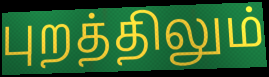
புறத்திலும்